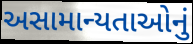
અસામાન્યતાઓનું